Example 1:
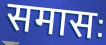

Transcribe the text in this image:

समासः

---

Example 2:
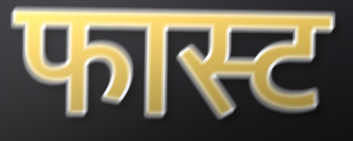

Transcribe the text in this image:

फास्ट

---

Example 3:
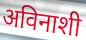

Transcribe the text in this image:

अविनाशी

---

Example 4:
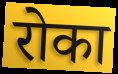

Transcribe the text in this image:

रोका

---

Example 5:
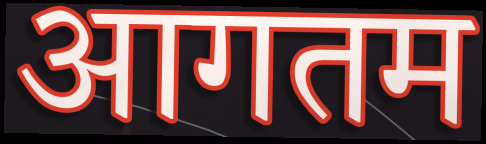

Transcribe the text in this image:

आगतम